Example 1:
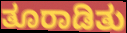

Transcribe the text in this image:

ತೂರಾಡಿತು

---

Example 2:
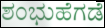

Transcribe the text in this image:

ಶಂಭುಹೆಗಡೆ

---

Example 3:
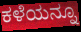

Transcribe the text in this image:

ಕಳೆಯನ್ನೂ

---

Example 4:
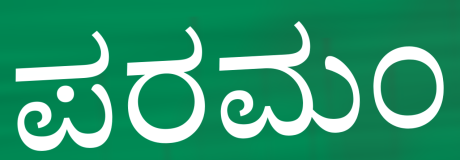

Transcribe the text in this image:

ಪರಮಂ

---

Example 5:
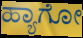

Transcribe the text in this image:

ಹ್ಯಾಗೋ